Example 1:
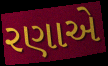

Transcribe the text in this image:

રણાએ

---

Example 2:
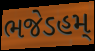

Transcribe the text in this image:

ભજેઽહમ્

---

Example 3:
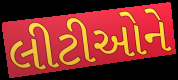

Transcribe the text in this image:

લીટીઓને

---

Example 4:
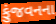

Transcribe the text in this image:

કુંજવનના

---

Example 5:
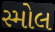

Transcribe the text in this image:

સ્મોલ